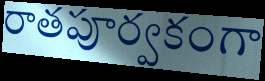
రాతపూర్వకంగా